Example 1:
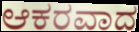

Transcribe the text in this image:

ಆಕರವಾದ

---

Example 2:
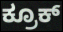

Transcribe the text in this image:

ಕ್ರೂಕ್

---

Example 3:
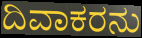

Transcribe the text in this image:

ದಿವಾಕರನು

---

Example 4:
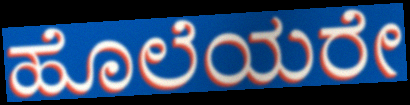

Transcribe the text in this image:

ಹೊಲೆಯರೇ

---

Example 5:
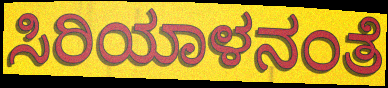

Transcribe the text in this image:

ಸಿರಿಯಾಳನಂತೆ